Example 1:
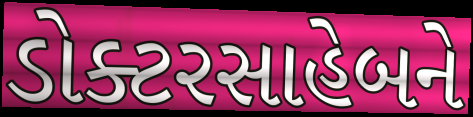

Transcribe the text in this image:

ડોક્ટરસાહેબને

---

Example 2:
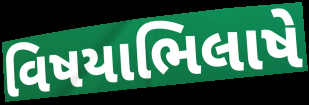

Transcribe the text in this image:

વિષયાભિલાષે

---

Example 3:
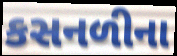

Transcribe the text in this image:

કસનળીના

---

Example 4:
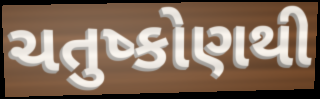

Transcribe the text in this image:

ચતુષ્કોણથી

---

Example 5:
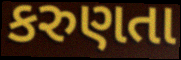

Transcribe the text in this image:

કરુણતા